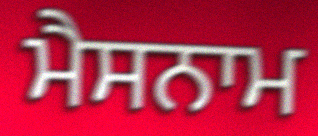
ਮੈਸਨਾਮ